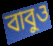
বাবুও